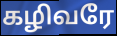
கழிவரே